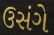
ઉસંગે